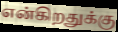
என்கிறதுக்கு